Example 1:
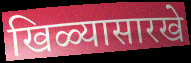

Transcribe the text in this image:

खिळ्यासारखे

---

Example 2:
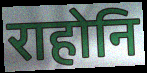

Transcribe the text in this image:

राहोनि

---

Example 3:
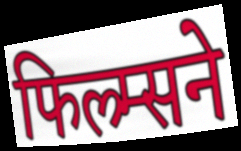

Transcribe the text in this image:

फिल्म्सने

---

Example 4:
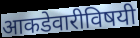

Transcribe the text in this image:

आकडेवारीविषयी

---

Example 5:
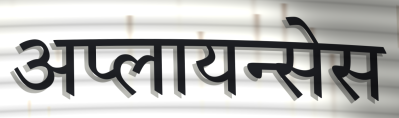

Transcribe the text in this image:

अप्लायन्सेस